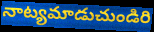
నాట్యమాడుచుండిరి